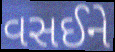
વસઈને